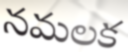
నమలక